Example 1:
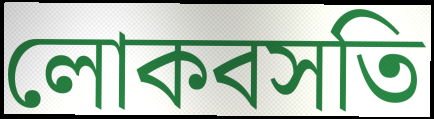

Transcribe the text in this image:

লোকবসতি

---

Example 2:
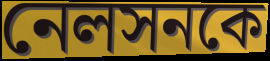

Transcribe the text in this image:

নেলসনকে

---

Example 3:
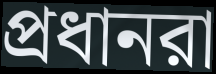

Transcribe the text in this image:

প্রধানরা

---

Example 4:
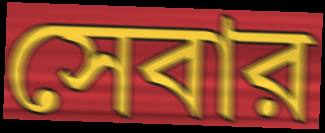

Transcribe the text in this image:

সেবার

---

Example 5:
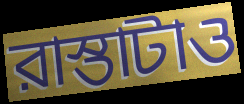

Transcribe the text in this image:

রাস্তাটাও